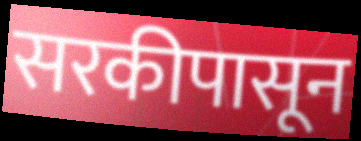
सरकीपासून